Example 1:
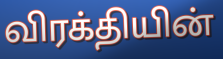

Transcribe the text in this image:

விரக்தியின்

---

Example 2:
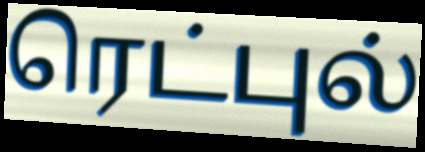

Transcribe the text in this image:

ரெட்புல்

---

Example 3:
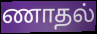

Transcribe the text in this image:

ணாதல்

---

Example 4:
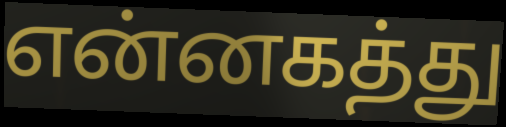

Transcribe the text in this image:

என்னகத்து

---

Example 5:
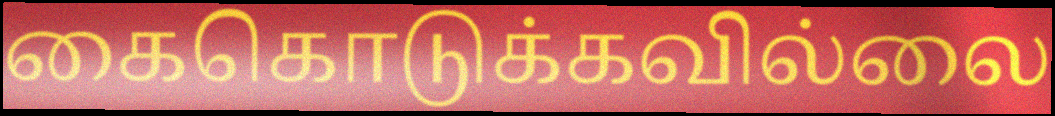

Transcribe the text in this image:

கைகொடுக்கவில்லை